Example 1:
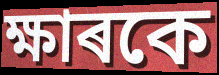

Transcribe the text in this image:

ক্ষাৰকে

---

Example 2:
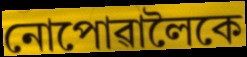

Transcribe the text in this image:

নোপোৱালৈকে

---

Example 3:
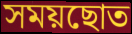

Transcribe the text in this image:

সময়ছোত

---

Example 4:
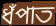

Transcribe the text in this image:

ধঁপাত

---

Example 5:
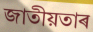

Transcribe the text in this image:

জাতীয়তাৰ